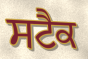
ਸਟੈਕ